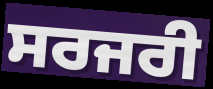
ਸਰਜਰੀ